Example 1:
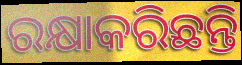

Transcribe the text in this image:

ରକ୍ଷାକରିଛନ୍ତି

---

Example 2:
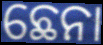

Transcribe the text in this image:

ଛେନା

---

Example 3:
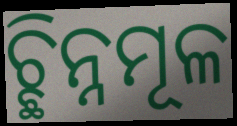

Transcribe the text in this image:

ଚ୍ଛିନ୍ନମୂଳ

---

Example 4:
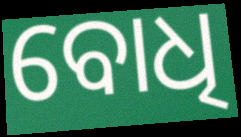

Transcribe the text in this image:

ବୋଧି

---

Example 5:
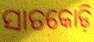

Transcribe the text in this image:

ସାତକୋଡ଼ି